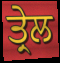
ਤ੍ਰੇਲ